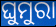
ଘୁମୁରା